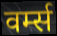
वर्म्स